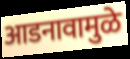
आडनावामुळे